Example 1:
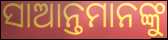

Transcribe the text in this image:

ସାଆନ୍ତମାନଙ୍କୁ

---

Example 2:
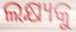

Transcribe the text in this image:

ଲକ୍ଷ୍ୟକୁ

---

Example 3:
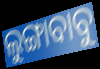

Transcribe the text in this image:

ଲୁଙ୍ଗାବାବୁ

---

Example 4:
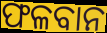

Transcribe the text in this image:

ଫଳବାନ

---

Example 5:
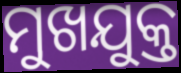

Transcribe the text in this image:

ମୁଖଯୁକ୍ତ